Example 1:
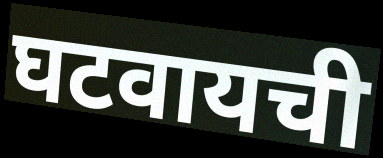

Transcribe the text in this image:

घटवायची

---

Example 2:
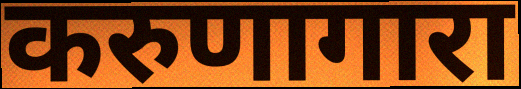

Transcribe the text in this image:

करुणागारा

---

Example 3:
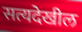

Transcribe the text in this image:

सत्यदेखील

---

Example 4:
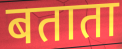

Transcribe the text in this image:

बताता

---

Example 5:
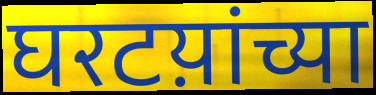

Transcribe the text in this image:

घरटय़ांच्या